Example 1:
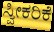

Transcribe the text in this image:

ಸ್ವೀಕರಿಕೆ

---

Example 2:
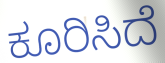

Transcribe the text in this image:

ಕೂರಿಸಿದೆ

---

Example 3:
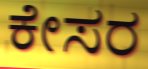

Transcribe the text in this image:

ಕೇಸರ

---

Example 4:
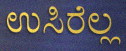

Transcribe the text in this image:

ಉಸಿರೆಲ್ಲ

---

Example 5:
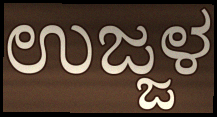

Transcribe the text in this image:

ಉಜ್ಜಳ